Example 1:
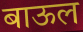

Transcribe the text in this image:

बाऊल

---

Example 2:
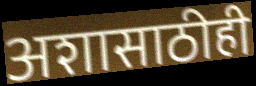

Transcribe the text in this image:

अशासाठीही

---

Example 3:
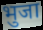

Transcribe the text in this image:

भुजा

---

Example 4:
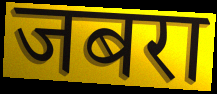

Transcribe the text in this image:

जबरा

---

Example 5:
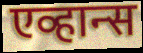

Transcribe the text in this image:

एव्हान्स